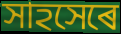
সাহসেৰে